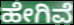
ಹೇಗಿವೆ